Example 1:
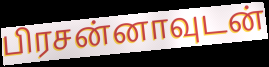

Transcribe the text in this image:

பிரசன்னாவுடன்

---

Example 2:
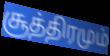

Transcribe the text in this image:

சூத்திரமும்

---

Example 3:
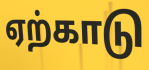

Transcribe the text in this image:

ஏற்காடு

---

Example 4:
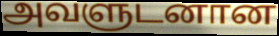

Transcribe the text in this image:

அவளுடனான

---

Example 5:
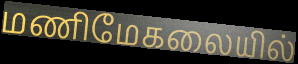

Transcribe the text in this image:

மணிமேகலையில்